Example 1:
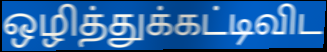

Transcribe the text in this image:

ஒழித்துக்கட்டிவிட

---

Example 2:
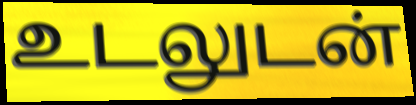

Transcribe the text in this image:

உடலுடன்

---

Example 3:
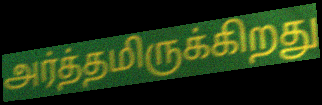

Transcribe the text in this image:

அர்த்தமிருக்கிறது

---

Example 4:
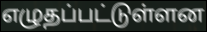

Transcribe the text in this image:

எழுதப்பட்டுள்ளன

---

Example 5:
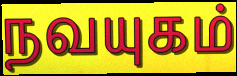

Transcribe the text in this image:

நவயுகம்